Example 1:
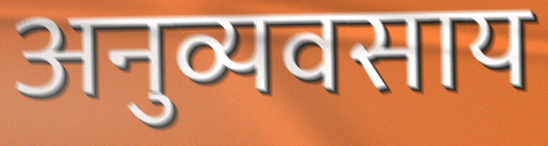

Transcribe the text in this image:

अनुव्यवसाय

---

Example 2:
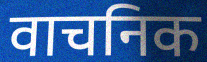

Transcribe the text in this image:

वाचनिक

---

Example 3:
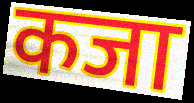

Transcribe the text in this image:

कजा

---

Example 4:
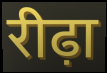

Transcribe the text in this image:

रीढ़ा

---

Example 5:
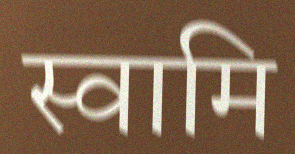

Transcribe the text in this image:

स्वामि